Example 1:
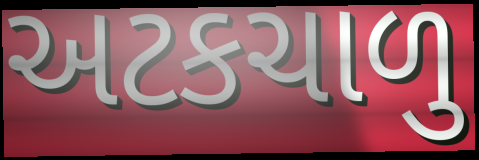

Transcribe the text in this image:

અટકચાળુ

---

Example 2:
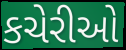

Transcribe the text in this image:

કચેરીઓ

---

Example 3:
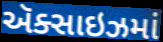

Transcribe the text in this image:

ઍક્સાઇઝમાં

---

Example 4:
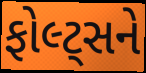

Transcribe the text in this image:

ફોલ્ટ્સને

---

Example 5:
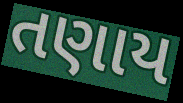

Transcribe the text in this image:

તણાય